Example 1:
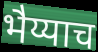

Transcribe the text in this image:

भैय्याच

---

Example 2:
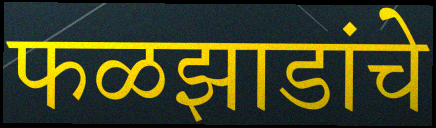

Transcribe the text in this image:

फळझाडांचे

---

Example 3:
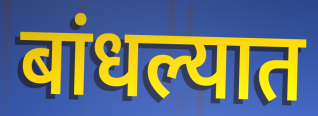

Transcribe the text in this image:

बांधल्यात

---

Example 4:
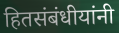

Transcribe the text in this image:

हितसंबंधीयांनी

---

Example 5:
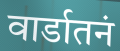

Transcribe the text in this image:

वार्डातनं